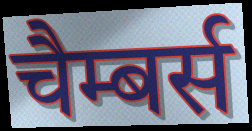
चैम्‍बर्स